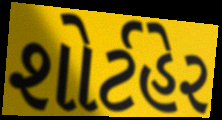
શોર્ટહેર